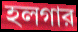
হলগার